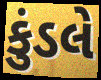
કુંડલે